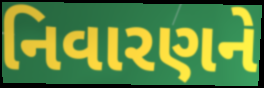
નિવારણને